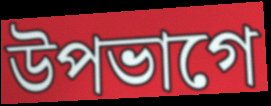
উপভাগে